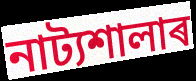
নাট্যশালাৰ